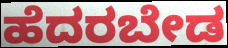
ಹೆದರಬೇಡ